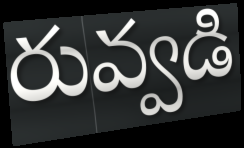
రువ్వడి